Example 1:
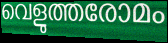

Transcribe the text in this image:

വെളുത്തരോമം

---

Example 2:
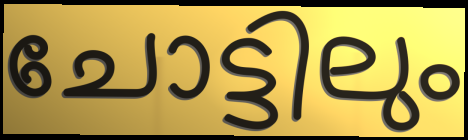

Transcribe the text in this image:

ചോട്ടിലും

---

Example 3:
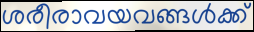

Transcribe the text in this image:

ശരീരാവയവങ്ങൾക്ക്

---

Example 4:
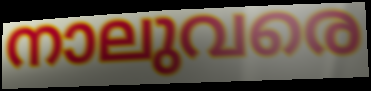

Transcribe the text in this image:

നാലുവരെ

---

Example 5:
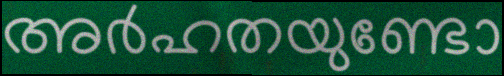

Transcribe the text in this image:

അർഹതയുണ്ടോ